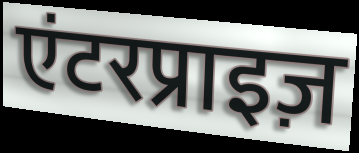
एंटरप्राइज़